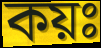
কয়ঃ